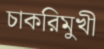
চাকরিমুখী